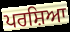
ਪਰਸ਼ਿਆ